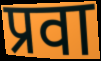
प्रवा